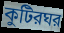
কুটিরঘর